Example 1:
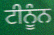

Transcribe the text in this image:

ਟੀਨੂੰਨ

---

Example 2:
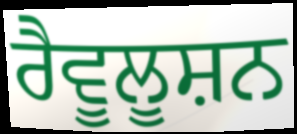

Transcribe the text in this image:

ਰੈਵੂਲੂਸ਼ਨ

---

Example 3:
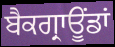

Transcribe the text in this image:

ਬੈਕਗ੍ਰਾਊਂਡਾਂ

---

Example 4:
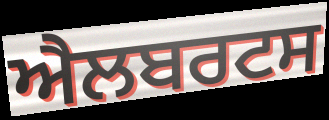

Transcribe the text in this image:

ਐਲਬਰਟਸ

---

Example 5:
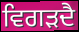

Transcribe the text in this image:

ਵਿਗੜਦੈ